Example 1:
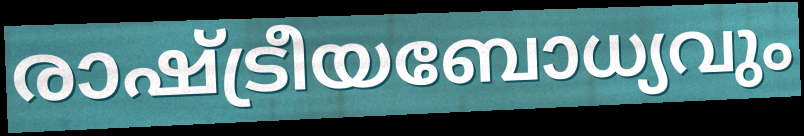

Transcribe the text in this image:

രാഷ്ട്രീയബോധ്യവും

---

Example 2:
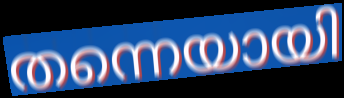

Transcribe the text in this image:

തന്നെയായി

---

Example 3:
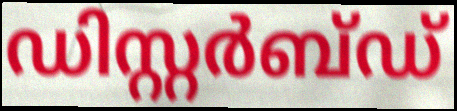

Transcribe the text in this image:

ഡിസ്റ്റർബ്ഡ്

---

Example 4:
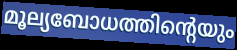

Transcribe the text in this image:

മൂല്യബോധത്തിന്റെയും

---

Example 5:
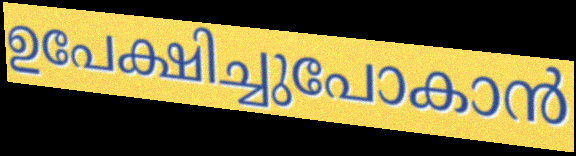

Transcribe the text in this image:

ഉപേക്ഷിച്ചുപോകാൻ